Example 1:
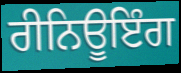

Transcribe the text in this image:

ਰੀਨਿਊਇੰਗ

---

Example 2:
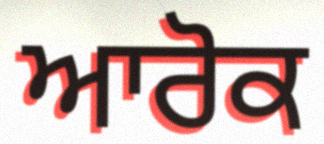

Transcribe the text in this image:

ਆਰੋਕ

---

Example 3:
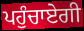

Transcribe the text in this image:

ਪਹੁੰਚਾਏਗੀ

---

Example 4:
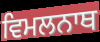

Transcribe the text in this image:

ਵਿਮਲਨਾਥ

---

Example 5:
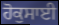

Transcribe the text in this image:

ਹੋਕੁਸਾਈ